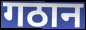
गठान